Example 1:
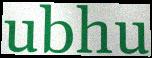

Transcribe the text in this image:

ubhu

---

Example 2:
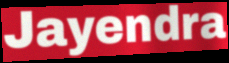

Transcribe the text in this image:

Jayendra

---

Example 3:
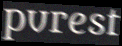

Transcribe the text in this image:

purest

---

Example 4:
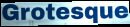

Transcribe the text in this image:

Grotesque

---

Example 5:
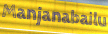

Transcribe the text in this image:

Manjanabailu